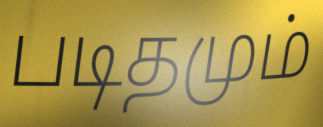
படிதமும்